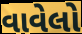
વાવેલો